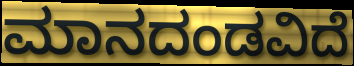
ಮಾನದಂಡವಿದೆ